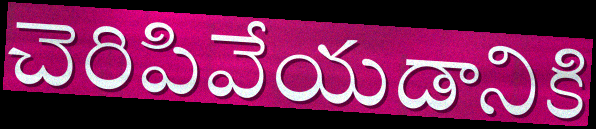
చెరిపివేయడానికి